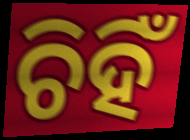
ଚିହିଁ